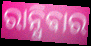
ରାନ୍ଧିବାର